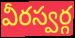
వీరస్వర్గ